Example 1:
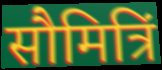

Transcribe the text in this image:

सौमित्रिं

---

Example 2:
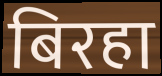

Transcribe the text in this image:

बिरहा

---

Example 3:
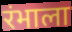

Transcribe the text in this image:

रंभाला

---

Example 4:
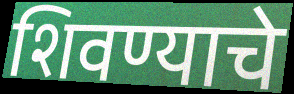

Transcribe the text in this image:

शिवण्याचे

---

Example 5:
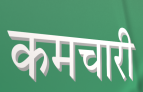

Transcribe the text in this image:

कमचारी